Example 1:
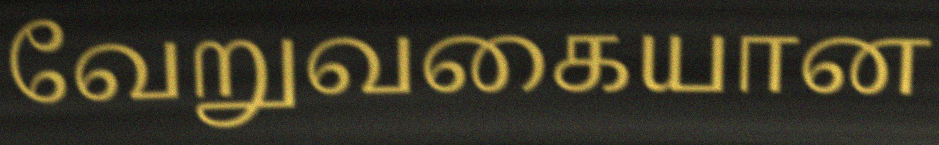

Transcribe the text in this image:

வேறுவகையான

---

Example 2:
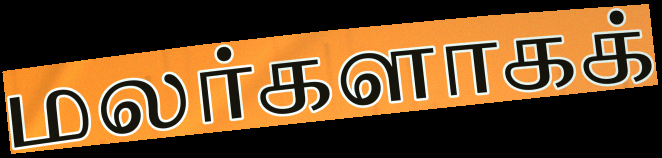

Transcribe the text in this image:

மலர்களாகக்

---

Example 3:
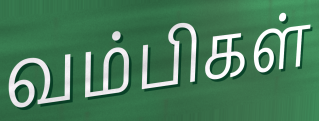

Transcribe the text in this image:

வம்பிகள்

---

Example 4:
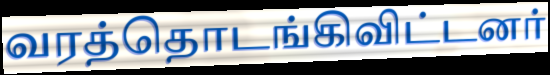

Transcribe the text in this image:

வரத்தொடங்கிவிட்டனர்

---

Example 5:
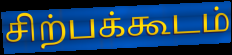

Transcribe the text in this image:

சிற்பக்கூடம்